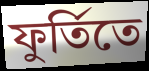
ফুর্তিতে